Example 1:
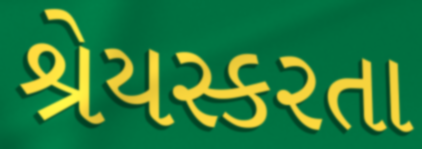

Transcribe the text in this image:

શ્રેયસ્કરતા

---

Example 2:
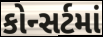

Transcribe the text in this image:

કોન્સર્ટમાં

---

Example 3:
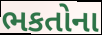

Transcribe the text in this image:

ભકતોના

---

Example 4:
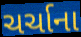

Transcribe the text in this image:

ચર્ચાના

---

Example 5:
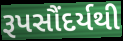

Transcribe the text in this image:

રૂપસૌંદર્યથી